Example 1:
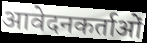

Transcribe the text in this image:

आवेदनकर्ताओं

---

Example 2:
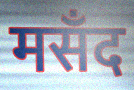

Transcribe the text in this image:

मसँद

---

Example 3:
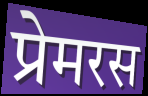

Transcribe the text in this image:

प्रेमरस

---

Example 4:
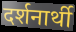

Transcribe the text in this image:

दर्शनार्थी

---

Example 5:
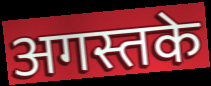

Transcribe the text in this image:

अगस्तके